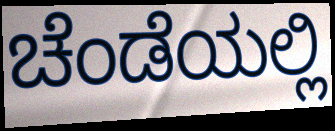
ಚೆಂಡೆಯಲ್ಲಿ